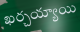
ఖర్చయ్యాయి